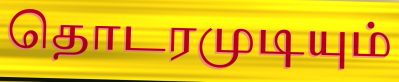
தொடரமுடியும்